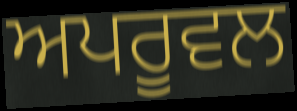
ਅਪਰੂਵਲ